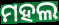
ମହଲ